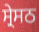
ਸ੍ਰੇਸਠ